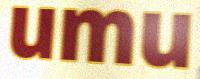
umu